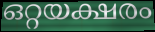
ഒറ്റയക്ഷരം